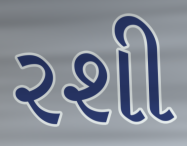
રશી